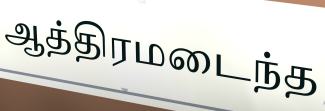
ஆத்திரமடைந்த